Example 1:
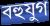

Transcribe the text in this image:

বহুযুগ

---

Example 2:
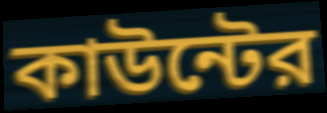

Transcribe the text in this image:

কাউন্টের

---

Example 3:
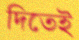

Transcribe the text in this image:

দিতেই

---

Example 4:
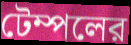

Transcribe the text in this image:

টেম্পলের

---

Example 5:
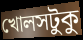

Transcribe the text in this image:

খোলসটুকু